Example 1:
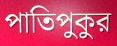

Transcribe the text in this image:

পাতিপুকুর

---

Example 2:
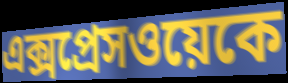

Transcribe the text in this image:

এক্সপ্রেসওয়েকে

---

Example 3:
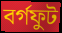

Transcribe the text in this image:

বর্গফুট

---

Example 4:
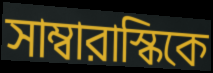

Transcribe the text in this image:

সাম্বারাস্কিকে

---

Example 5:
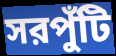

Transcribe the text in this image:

সরপুঁটি